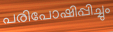
പരിപോഷിപ്പിച്ചും